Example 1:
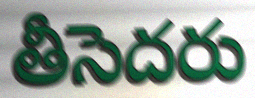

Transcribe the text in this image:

తీసెదరు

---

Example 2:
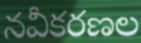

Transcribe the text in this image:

నవీకరణల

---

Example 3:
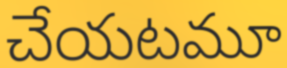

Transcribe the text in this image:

చేయటమూ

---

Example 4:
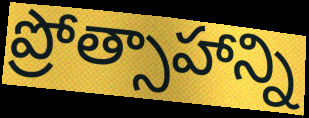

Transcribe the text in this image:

ప్రోత్సాహాన్ని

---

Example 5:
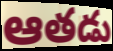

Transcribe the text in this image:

ఆతడు